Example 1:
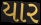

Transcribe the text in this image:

યાર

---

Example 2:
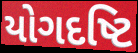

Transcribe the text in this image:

યોગદષ્ટિ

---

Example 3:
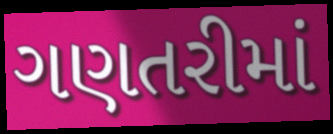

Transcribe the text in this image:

ગણતરીમાં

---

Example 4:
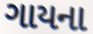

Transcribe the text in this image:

ગાયના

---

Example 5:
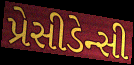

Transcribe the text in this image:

પ્રેસીડેન્સી